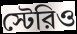
স্টেরিও